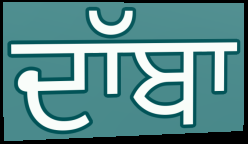
ਦਾੱਬਾ